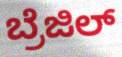
ಬ್ರೆಜಿಲ್